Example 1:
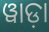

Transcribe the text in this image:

ୱାଡ଼ା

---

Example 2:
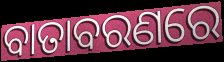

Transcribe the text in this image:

ବାତାବରଣରେ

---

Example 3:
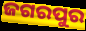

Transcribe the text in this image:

ଜଗରପୁର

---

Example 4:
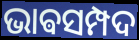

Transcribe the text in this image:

ଭାଵସମ୍ପଦ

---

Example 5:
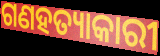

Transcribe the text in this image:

ଗଣହତ୍ୟାକାରୀ